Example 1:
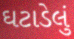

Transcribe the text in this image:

ઘટાડેલું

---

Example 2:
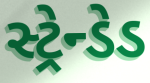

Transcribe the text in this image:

સ્ટ્રેન્ડેડ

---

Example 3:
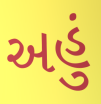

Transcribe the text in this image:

અહું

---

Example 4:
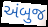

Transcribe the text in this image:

અંબુજ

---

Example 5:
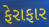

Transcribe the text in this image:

ફેરાફાર